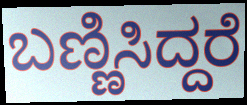
ಬಣ್ಣಿಸಿದ್ದರೆ